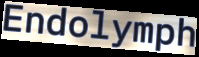
Endolymph